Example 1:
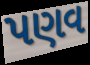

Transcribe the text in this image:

પણવ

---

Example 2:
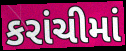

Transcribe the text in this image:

કરાંચીમાં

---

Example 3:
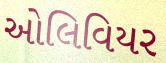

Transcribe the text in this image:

ઓલિવિયર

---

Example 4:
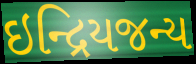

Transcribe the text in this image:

ઇન્દ્રિયજન્ય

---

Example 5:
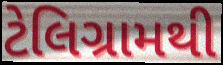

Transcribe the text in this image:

ટેલિગ્રામથી